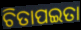
ଚିତାପଇତା